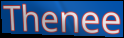
Thenee